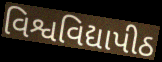
વિશ્વવિદ્યાપીઠ